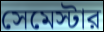
সেমেস্টার